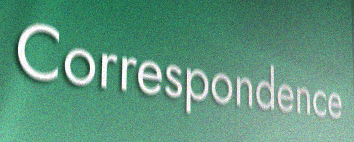
Correspondence